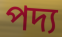
পদ্য